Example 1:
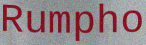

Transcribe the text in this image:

Rumpho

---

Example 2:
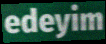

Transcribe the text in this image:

edeyim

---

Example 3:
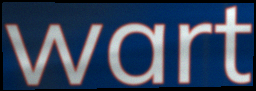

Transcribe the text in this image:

wart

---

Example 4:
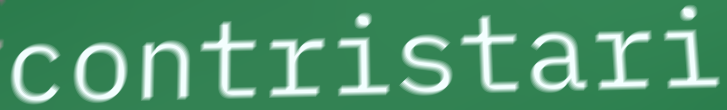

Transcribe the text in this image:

contristari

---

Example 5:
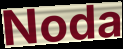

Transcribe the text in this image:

Noda